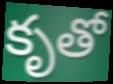
కృతో